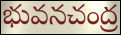
భువనచంద్ర